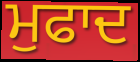
ਮੁਫਾਦ